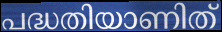
പദ്ധതിയാണിത്